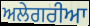
ਅਲੇਗਰੀਆ